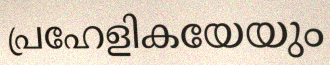
പ്രഹേളികയേയും